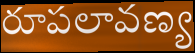
రూపలావణ్య